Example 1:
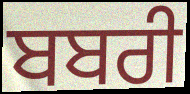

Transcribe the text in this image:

ਬਬਰੀ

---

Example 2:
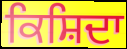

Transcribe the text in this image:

ਕਿਸ਼ਿਦਾ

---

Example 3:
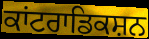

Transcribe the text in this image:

ਕਾਂਟਰਾਡਿਕਸ਼ਨ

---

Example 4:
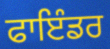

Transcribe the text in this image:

ਫਾਇੰਡਰ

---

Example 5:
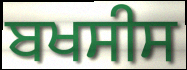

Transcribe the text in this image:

ਬਖਸੀਸ